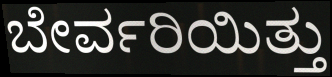
ಬೇರ್ವರಿಯಿತ್ತು